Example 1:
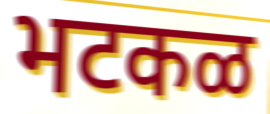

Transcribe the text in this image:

भटकळ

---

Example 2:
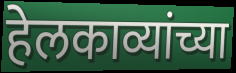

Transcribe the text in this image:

हेलकाव्यांच्या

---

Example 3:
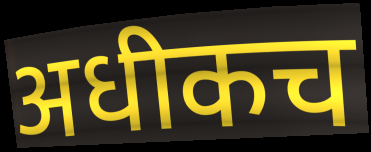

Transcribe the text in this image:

अधीकच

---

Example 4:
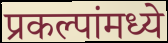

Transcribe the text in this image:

प्रकल्पांमध्ये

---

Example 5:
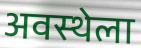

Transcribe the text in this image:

अवस्थेला